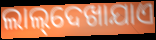
ଲାଲ୍‌ଦେଖାଯାଏ